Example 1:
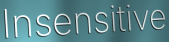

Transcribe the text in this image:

Insensitive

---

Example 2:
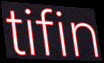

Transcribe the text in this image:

tifin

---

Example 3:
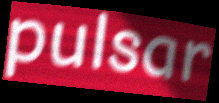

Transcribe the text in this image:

pulsar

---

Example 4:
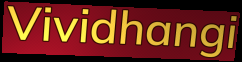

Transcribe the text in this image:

Vividhangi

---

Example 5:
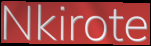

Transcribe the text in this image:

Nkirote